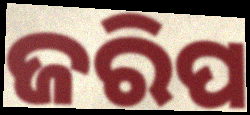
ଜରିପ